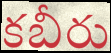
కబీరు